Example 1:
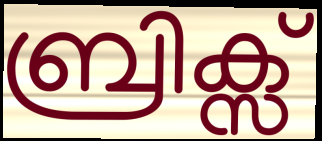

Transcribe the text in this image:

ബ്രിക്സ്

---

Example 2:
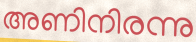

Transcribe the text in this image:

അണിനിരന്നു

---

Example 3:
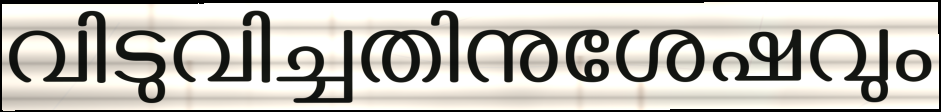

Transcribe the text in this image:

വിടുവിച്ചതിനുശേഷവും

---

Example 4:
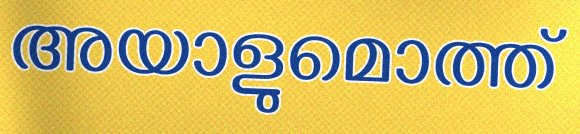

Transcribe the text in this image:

അയാളുമൊത്ത്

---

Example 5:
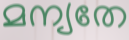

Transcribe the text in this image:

മന്യതേ